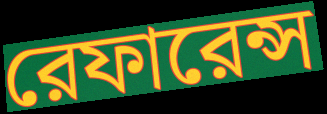
রেফারেন্স